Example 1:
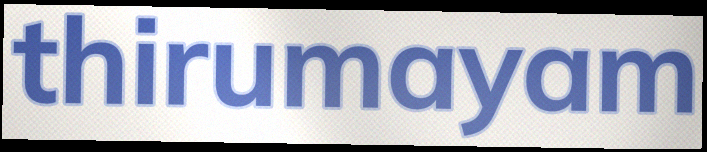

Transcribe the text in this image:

thirumayam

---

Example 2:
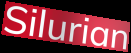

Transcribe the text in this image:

Silurian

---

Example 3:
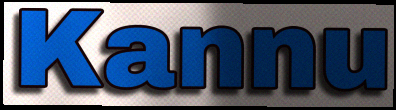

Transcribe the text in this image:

Kannu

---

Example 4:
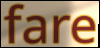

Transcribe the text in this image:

fare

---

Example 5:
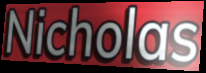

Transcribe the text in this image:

Nicholas